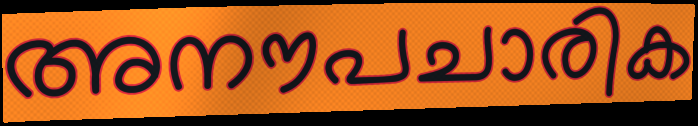
അനൗപചാരിക